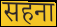
सहना